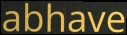
abhave